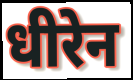
धीरेन